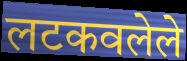
लटकवलेले